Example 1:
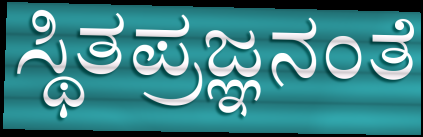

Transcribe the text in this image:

ಸ್ಥಿತಪ್ರಜ್ಞನಂತೆ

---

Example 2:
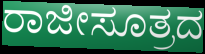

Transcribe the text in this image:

ರಾಜೀಸೂತ್ರದ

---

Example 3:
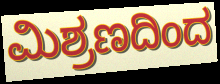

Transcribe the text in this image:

ಮಿಶ್ರಣದಿಂದ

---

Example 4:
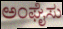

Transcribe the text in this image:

ಅಂಘೈಸು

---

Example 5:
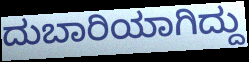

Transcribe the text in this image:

ದುಬಾರಿಯಾಗಿದ್ದು